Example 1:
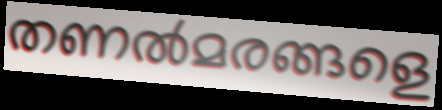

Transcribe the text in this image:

തണൽമരങ്ങളെ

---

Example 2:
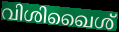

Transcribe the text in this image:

വിശിഖൈശ്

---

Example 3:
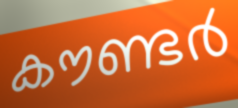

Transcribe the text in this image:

കൗണ്ടർ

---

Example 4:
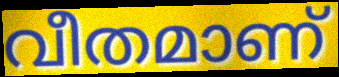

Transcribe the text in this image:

വീതമാണ്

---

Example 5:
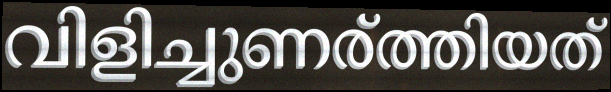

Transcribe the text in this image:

വിളിച്ചുണര്ത്തിയത്